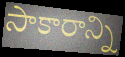
సాకారాన్ని